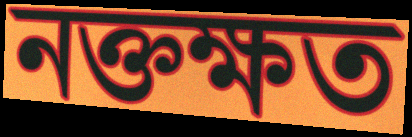
নক্তক্ষত